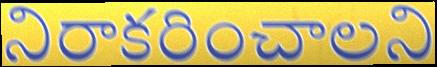
నిరాకరించాలని